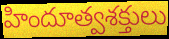
హిందూత్వశక్తులు